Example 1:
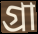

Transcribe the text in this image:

গ্ৰা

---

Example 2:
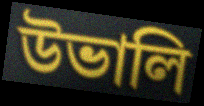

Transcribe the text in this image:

উভালি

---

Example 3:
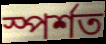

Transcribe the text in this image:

স্পৰ্শত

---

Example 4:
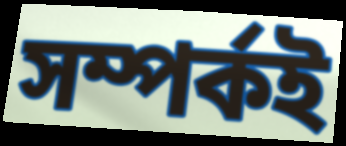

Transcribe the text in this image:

সম্পৰ্কই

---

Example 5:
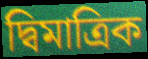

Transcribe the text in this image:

দ্বিমাত্ৰিক